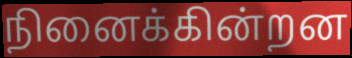
நினைக்கின்றன